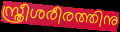
സ്ത്രീശരീരത്തിനു